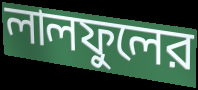
লালফুলের